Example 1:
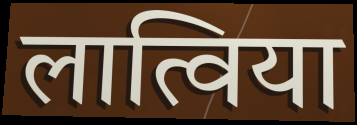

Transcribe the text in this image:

लात्विया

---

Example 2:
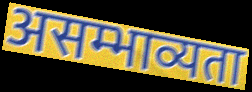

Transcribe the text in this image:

असम्भाव्यता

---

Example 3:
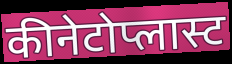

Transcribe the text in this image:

कीनेटोप्लास्ट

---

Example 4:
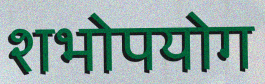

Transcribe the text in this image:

शभोपयोग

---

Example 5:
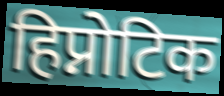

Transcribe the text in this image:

हिप्नोटिक